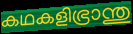
കഥകളിഭ്രാന്തു